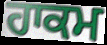
ਹਾਕਮ